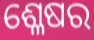
ଶ୍ଳେଷର